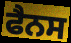
ਫੈਨਸ